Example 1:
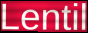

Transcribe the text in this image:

Lentil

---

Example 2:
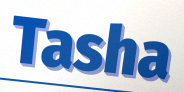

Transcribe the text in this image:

Tasha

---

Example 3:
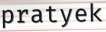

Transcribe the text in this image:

pratyek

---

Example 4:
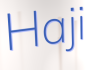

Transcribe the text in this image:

Haji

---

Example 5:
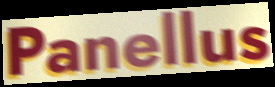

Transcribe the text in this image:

Panellus